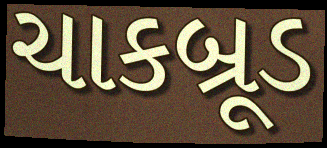
ચાકબ્રૂડ